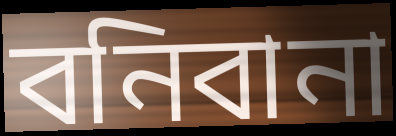
বনিবানা